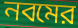
নবমের